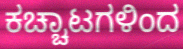
ಕಚ್ಚಾಟಗಳಿಂದ